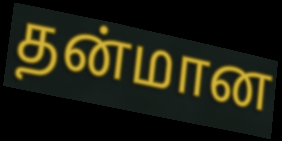
தன்மான